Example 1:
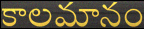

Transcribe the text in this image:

కాలమానం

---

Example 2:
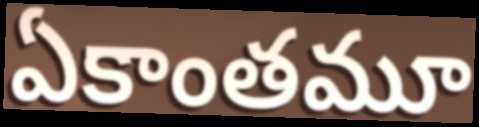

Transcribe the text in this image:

ఏకాంతమూ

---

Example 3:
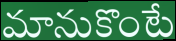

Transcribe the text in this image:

మానుకొంటే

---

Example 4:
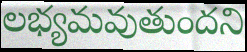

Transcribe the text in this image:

లభ్యమవుతుందని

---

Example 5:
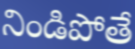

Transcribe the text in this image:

నిండిపోతే